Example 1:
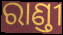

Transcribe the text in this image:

ରାଣ୍ଡୀ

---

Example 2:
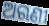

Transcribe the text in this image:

ଅଋଣୀ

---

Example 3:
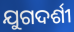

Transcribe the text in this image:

ଯୁଗଦର୍ଶୀ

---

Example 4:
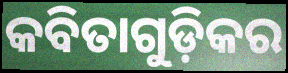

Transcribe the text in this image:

କବିତାଗୁଡ଼ିକର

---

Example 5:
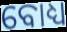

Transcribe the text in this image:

ବୋଧ୍ୟ